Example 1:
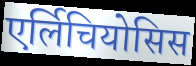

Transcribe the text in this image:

एर्लिचियोसिस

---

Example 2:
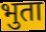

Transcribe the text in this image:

भुता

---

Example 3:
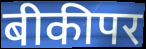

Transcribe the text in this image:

बीकीपर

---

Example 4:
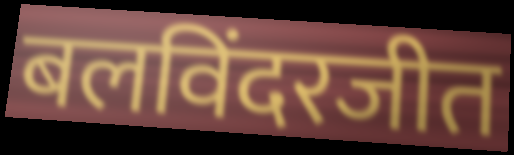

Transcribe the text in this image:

बलविंदरजीत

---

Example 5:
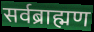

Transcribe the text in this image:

सर्वब्राह्मण